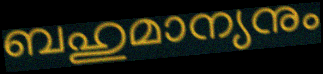
ബഹുമാന്യനും